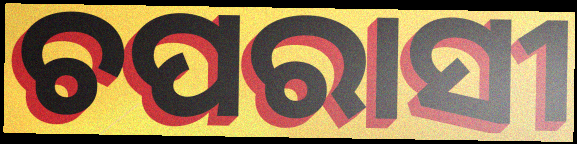
ଚପରାସୀ